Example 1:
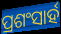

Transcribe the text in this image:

ପ୍ରଶଂସାର୍ହ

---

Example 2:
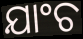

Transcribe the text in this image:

ଯାଂଚ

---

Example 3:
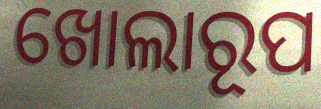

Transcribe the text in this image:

ଖୋଲାରୂପ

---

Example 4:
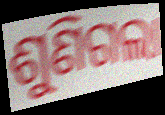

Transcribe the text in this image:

ଶୁଣିଗଲା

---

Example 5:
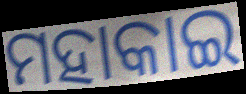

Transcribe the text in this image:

ମହାକାଇ